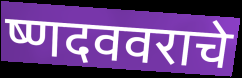
ष्णदववराचे